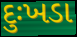
દુઃખડા